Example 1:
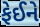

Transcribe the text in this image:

ફેઈને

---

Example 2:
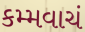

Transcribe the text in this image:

કમ્મવાચં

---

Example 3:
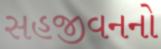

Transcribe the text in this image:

સહજીવનનો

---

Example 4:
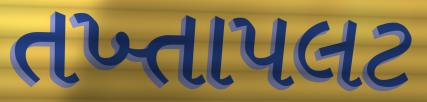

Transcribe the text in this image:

તખ્તાપલટ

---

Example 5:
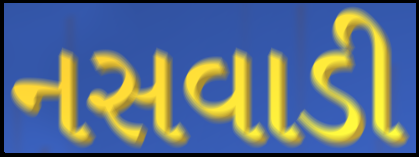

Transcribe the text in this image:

નસવાડી